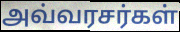
அவ்வரசர்கள்